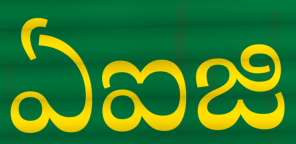
ఏఐజి